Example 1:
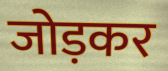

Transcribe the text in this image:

जोड़कर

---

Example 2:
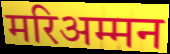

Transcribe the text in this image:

मरिअम्मन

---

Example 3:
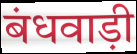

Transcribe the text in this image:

बंधवाड़ी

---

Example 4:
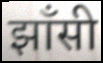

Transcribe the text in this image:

झाँसी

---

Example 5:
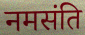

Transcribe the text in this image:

नमसंति